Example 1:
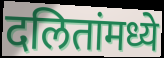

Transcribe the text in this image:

दलितांमध्ये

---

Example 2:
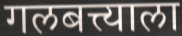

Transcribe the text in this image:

गलबत्त्याला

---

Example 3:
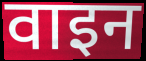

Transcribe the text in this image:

वाइन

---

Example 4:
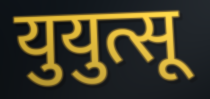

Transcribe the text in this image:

युयुत्सू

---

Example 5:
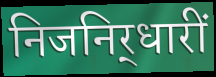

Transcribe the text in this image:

निजनिर्धारीं